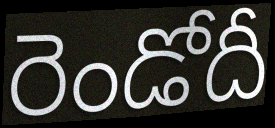
రెండోదీ